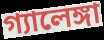
গ্যালেঙ্গা